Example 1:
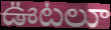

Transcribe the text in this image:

ఊటలూ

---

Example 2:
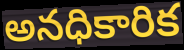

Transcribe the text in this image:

అనధికారిక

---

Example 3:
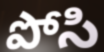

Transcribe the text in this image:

పోసి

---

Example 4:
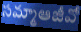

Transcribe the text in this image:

సమ్మాఆజీవో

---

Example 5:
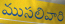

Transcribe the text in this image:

ముసలివారి